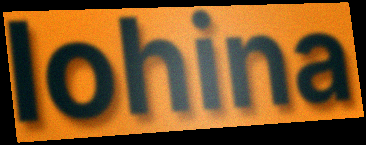
lohina